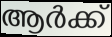
ആർക്ക്